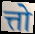
त्तो